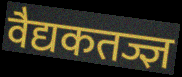
वैद्यकतज्ज्ञ